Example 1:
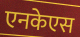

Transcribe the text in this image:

एनकेएस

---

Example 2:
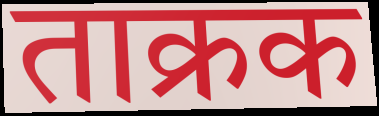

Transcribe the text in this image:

ताक्रक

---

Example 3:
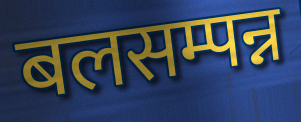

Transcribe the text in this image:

बलसम्पन्न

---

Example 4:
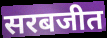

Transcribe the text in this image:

सरबजीत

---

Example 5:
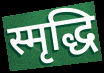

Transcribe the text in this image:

स्मृद्धि